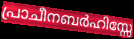
പ്രാചീനബർഹിസ്സേ